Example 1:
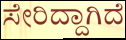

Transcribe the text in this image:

ಸೇರಿದ್ದಾಗಿದೆ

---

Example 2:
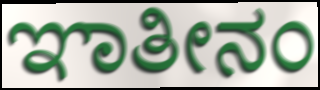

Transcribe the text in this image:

ಞಾತೀನಂ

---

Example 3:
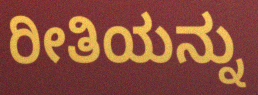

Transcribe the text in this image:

ರೀತಿಯನ್ನು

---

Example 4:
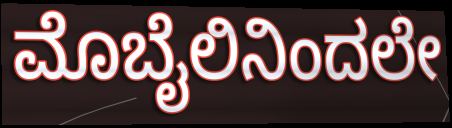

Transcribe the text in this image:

ಮೊಬೈಲಿನಿಂದಲೇ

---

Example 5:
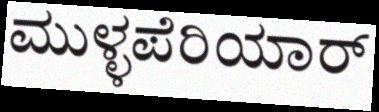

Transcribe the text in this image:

ಮುಳ್ಳಪೆರಿಯಾರ್